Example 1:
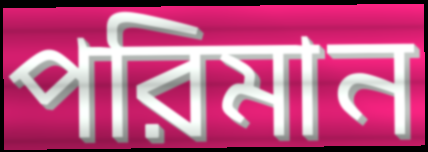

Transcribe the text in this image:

পরিমান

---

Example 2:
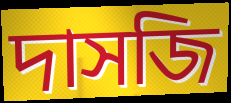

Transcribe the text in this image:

দাসজি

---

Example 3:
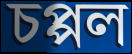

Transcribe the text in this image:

চপ্পল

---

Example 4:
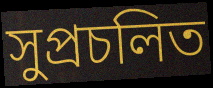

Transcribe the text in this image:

সুপ্রচলিত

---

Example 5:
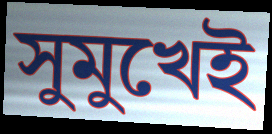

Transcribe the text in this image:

সুমুখেই